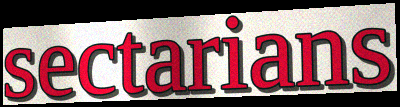
sectarians